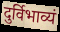
दुर्विभाव्यं